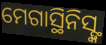
ମେଗାସ୍ଥିନିସ୍ଙ୍କ